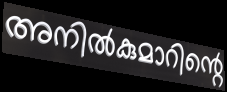
അനിൽകുമാറിന്റെ